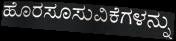
ಹೊರಸೂಸುವಿಕೆಗಳನ್ನು